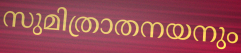
സുമിത്രാതനയനും